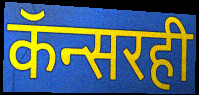
कॅन्सरही